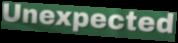
Unexpected